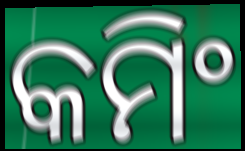
କମିଂ